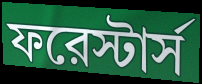
ফরেস্টার্স